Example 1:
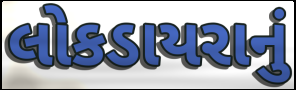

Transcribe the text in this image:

લોકડાયરાનું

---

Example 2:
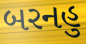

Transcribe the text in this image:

બરનહુ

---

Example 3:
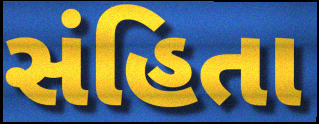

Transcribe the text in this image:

સંહિતા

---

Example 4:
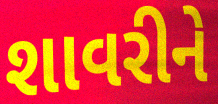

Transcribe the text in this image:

શાવરીને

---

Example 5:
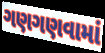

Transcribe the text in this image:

ગણગણવામાં